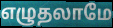
எழுதலாமே